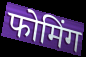
फोमिंग